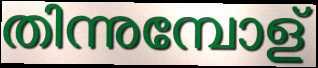
തിന്നുമ്പോള്